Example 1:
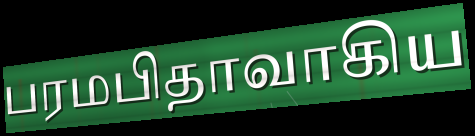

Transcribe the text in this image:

பரமபிதாவாகிய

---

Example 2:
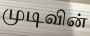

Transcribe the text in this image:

முடிவின்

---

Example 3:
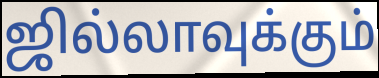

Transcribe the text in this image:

ஜில்லாவுக்கும்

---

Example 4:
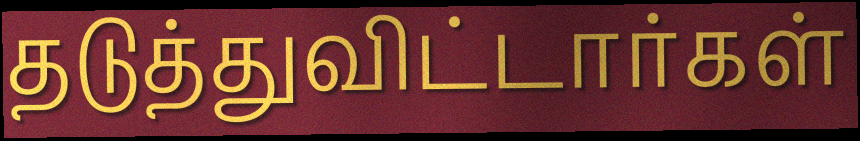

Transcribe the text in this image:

தடுத்துவிட்டார்கள்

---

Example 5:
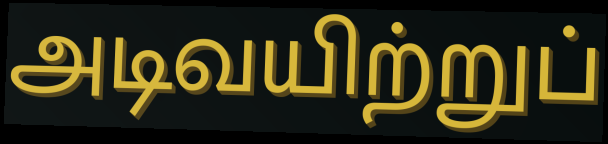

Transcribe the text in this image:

அடிவயிற்றுப்